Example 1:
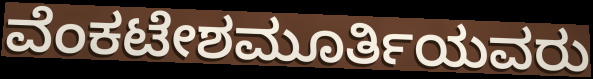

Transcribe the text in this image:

ವೆಂಕಟೇಶಮೂರ್ತಿಯವರು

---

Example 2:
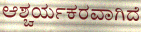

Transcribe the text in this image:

ಆಶ್ಚರ್ಯಕರವಾಗಿದೆ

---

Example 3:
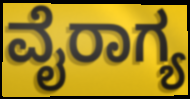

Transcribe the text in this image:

ವೈರಾಗ್ಯ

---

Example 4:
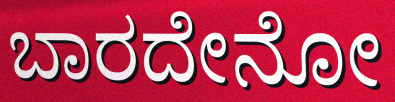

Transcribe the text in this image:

ಬಾರದೇನೋ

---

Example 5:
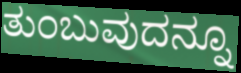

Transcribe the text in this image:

ತುಂಬುವುದನ್ನೂ